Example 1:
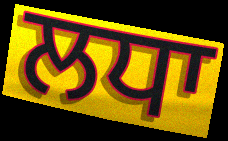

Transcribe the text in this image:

ਲਧਾ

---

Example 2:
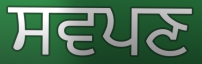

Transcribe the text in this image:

ਸਵਪਣ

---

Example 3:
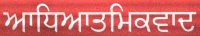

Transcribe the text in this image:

ਆਧਿਆਤਮਿਕਵਾਦ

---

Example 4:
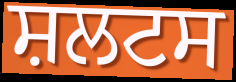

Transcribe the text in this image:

ਸ਼ਲਟਸ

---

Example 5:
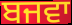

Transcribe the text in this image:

ਬਜਵਾ